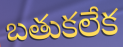
బతుకలేక